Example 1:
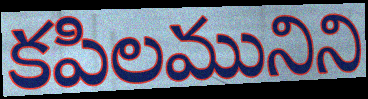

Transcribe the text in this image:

కపిలమునిని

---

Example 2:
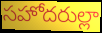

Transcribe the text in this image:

సహోదరుల్లా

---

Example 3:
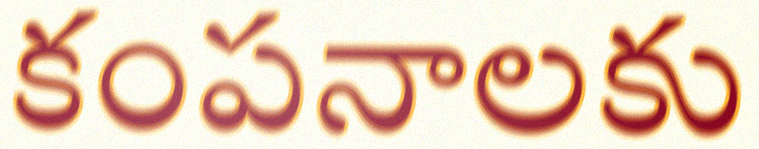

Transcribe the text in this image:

కంపనాలకు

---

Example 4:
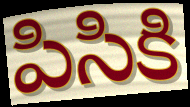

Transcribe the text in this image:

పిసికి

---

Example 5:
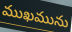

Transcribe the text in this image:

ముఖమును